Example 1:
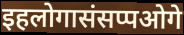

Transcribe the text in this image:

इहलोगासंसप्पओगे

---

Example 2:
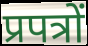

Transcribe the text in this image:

प्रपत्रों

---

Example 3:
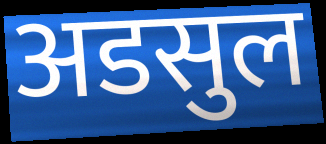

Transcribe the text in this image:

अडसुल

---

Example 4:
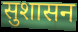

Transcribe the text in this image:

सुशासन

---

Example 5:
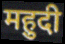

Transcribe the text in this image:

महुदी